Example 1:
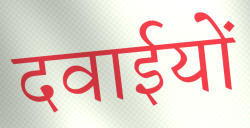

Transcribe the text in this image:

दवाईयों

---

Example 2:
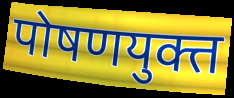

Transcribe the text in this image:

पोषणयुक्त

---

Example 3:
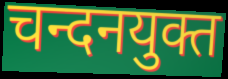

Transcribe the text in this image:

चन्दनयुक्त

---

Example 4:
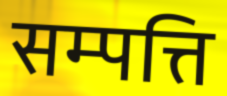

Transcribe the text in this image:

सम्पत्ति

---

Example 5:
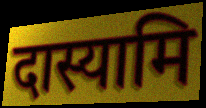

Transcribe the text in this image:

दास्यामि